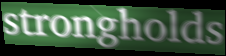
strongholds